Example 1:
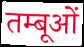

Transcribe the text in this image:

तम्बूओं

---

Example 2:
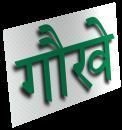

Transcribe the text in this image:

गौखे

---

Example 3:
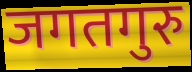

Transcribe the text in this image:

जगतगुरु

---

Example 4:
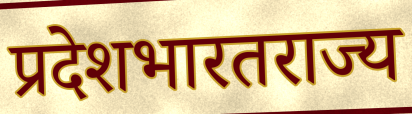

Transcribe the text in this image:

प्रदेशभारतराज्य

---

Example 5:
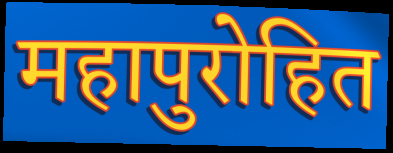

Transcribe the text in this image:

महापुरोहित